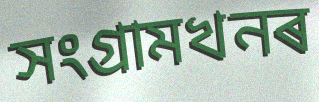
সংগ্ৰামখনৰ